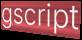
gscript